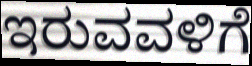
ಇರುವವಳಿಗೆ